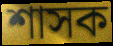
শাসক